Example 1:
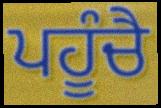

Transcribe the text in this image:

ਪਹੂੰਚੈ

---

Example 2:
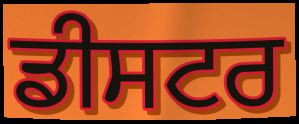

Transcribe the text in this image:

ਡੀਸਟਰ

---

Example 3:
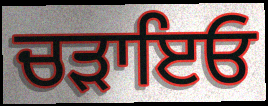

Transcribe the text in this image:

ਚੜਾਇਓ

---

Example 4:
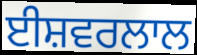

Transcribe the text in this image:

ਈਸ਼ਵਰਲਾਲ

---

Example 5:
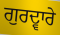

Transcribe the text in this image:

ਗੁਰਦ੍ਵਾਰੇ